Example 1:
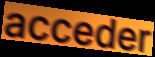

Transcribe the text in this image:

acceder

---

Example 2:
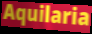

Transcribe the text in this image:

Aquilaria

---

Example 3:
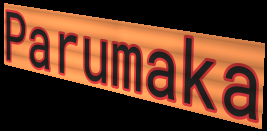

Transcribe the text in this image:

Parumaka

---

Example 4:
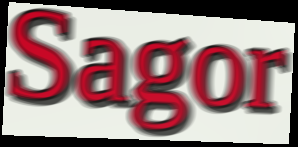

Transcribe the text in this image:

Sagor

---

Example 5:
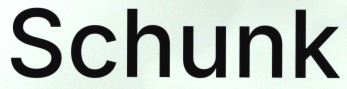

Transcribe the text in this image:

Schunk